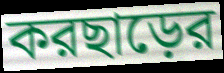
করছাড়ের